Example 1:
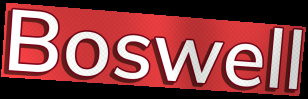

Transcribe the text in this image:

Boswell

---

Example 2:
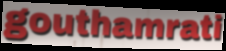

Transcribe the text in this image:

gouthamrati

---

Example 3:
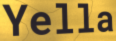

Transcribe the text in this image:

Yella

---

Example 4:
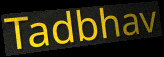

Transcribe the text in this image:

Tadbhav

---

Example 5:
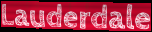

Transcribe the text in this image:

Lauderdale